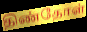
திண்தோள்